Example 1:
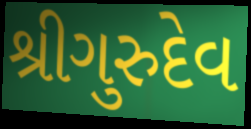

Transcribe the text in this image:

શ્રીગુરુદેવ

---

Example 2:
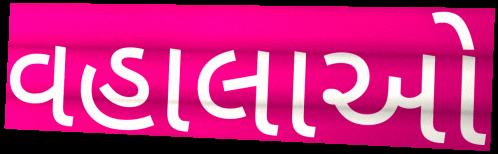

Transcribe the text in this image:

વહાલાઓ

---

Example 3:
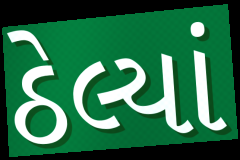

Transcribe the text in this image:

ઠેલ્યાં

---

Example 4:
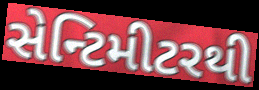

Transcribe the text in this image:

સેન્ટિમીટરથી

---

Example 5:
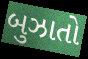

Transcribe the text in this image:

બુઝાતો